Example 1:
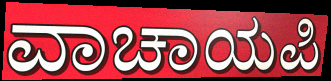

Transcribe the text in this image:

ವಾಚಾಯಪಿ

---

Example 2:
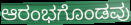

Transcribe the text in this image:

ಆರಂಭಗೊಂಡವು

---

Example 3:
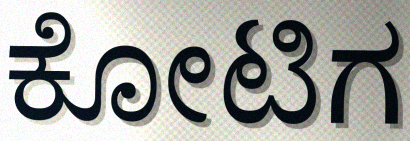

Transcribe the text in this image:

ಕೋಟಿಗ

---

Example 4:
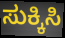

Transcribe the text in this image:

ಸುಕ್ಕಿಸಿ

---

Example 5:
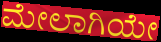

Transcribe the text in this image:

ಮೇಲಾಗಿಯೇ